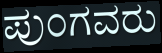
ಪುಂಗವರು